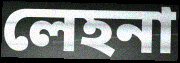
লেহনা